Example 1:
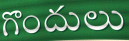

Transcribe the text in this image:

గొందులు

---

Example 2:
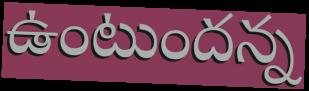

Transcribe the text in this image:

ఉంటుందన్న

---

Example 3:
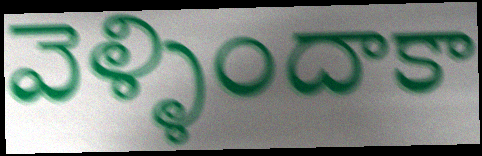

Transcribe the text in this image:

వెళ్ళిందాకా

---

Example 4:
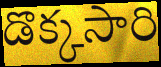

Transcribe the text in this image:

డొక్కసారి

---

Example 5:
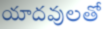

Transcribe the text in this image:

యాదవులతో